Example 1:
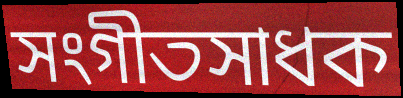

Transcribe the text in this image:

সংগীতসাধক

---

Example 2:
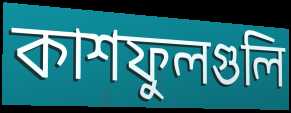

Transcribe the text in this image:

কাশফুলগুলি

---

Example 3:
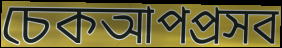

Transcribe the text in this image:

চেকআপপ্রসব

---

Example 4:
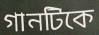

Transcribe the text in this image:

গানটিকে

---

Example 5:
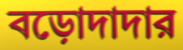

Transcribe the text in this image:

বড়োদাদার